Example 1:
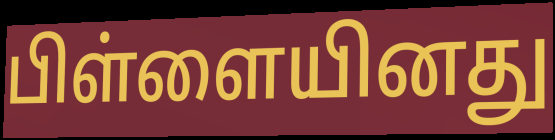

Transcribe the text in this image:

பிள்ளையினது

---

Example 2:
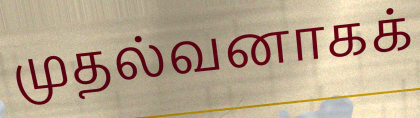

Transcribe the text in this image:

முதல்வனாகக்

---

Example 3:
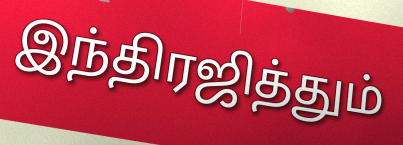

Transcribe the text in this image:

இந்திரஜித்தும்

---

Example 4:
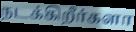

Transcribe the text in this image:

நடக்கிறீர்களா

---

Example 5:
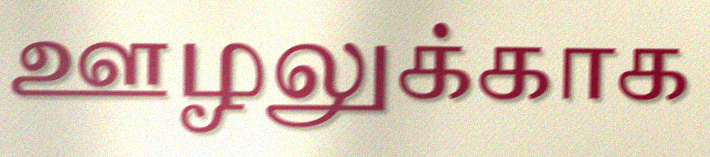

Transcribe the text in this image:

ஊழலுக்காக